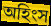
অহিংস